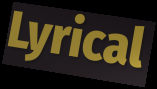
Lyrical